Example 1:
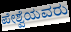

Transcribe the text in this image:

ಪೇಶ್ವೆಯವರು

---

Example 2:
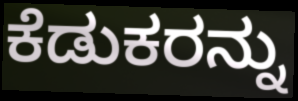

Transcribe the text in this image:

ಕೆಡುಕರನ್ನು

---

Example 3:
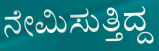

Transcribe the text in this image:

ನೇಮಿಸುತ್ತಿದ್ದ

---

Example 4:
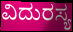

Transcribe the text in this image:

ವಿದುರಸ್ಯ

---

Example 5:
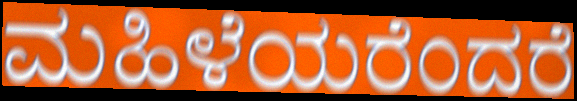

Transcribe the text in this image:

ಮಹಿಳೆಯರೆಂದರೆ